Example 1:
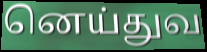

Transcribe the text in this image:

னெய்துவ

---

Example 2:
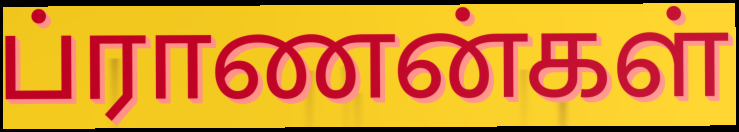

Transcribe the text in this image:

ப்ராணன்கள்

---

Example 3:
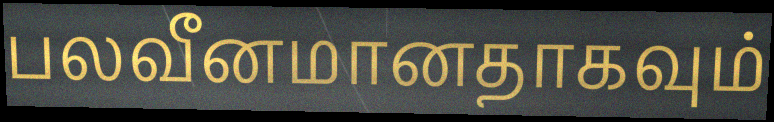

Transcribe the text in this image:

பலவீனமானதாகவும்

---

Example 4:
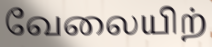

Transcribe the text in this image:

வேலையிற்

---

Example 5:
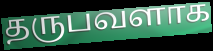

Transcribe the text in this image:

தருபவளாக